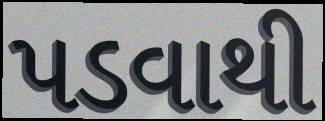
પડવાથી